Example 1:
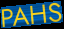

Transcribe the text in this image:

PAHS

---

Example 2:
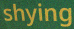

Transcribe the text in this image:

shying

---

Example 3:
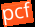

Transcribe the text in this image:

pcf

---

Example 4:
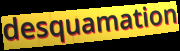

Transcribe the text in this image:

desquamation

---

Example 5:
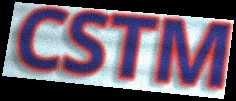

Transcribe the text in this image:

CSTM